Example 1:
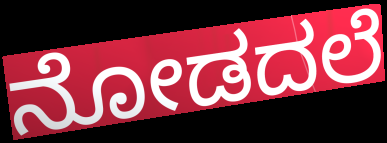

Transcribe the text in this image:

ನೋಡದಲೆ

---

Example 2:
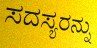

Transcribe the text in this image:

ಸದಸ್ಯರನ್ನು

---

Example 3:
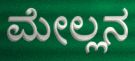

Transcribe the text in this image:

ಮೇಲ್ಲನ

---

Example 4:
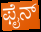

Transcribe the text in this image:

ಫೈನ್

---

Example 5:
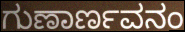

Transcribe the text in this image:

ಗುಣಾರ್ಣವನಂ